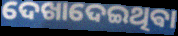
ଦେଖାଦେଇଥିଵା